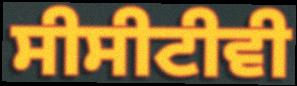
ਸੀਸੀਟੀਵੀ